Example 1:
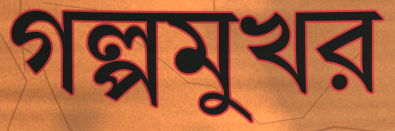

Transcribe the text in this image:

গল্পমুখর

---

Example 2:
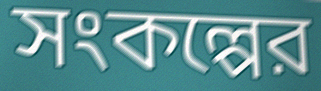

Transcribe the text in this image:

সংকল্পের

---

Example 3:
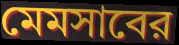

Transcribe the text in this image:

মেমসাবের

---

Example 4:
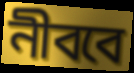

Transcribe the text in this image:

নীববে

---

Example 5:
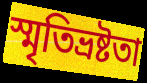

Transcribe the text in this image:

স্মৃতিভ্রষ্টতা